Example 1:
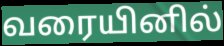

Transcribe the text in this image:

வரையினில்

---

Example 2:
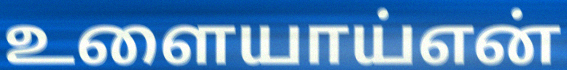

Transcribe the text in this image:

உளையாய்என்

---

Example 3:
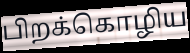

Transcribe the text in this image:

பிறக்கொழிய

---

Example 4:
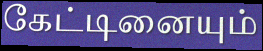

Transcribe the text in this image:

கேட்டினையும்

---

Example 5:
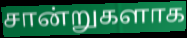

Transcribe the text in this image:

சான்றுகளாக